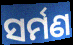
ସର୍ମଣ